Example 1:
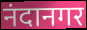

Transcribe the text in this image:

नंदानगर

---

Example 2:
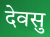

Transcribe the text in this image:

देवसु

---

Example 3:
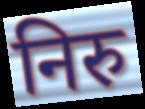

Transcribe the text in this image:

निरु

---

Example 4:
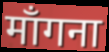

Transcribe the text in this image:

माँगना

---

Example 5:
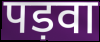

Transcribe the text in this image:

पड़वा